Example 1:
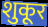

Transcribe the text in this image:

शुकूर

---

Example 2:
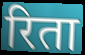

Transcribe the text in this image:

रिता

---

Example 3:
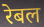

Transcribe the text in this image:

रेबल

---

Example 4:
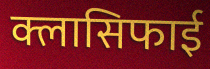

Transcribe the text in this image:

क्लासिफाई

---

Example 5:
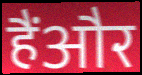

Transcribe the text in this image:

हैंऔर